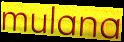
mulana